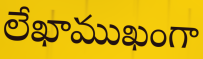
లేఖాముఖంగా